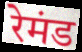
रेमंड